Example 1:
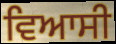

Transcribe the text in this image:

ਵਿਆਸੀ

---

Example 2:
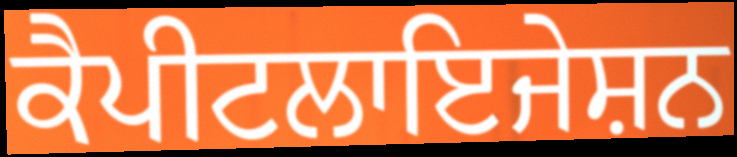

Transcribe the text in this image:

ਕੈਪੀਟਲਾਇਜੇਸ਼ਨ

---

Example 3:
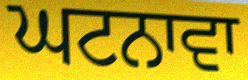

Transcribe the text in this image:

ਘਟਨਾਵਾ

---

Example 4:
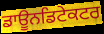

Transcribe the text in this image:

ਡਾਊਨਡਿਟੇਕਟਰ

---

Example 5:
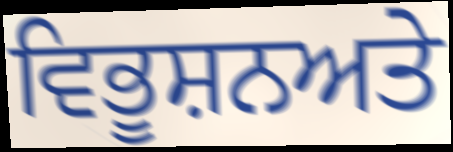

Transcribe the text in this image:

ਵਿਭੂਸ਼ਨਅਤੇ